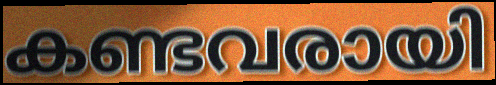
കണ്ടവരായി